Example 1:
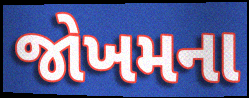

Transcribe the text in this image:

જોખમના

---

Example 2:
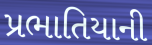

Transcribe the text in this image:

પ્રભાતિયાની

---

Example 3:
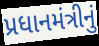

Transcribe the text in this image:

પ્રધાનમંત્રીનું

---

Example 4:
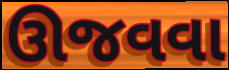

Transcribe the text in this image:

ઊજવવા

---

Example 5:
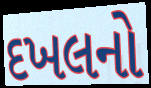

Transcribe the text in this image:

દખલનો